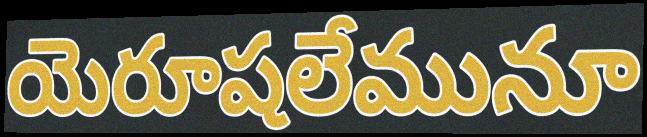
యెరూషలేమునూ